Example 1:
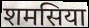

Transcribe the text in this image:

शमसिया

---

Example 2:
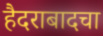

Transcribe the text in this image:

हैदराबादचा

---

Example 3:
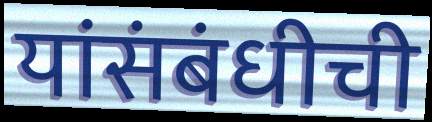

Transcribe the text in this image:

यांसंबंधीची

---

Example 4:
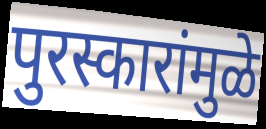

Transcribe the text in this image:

पुरस्कारांमुळे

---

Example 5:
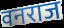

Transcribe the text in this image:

वनराज